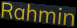
Rahmin